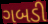
ગબડી